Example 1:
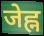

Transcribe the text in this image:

जेह्न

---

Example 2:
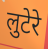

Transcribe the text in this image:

लुटेरे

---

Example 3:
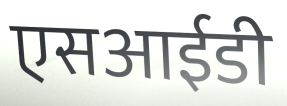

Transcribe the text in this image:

एसआईडी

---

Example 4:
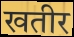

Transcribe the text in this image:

खतीर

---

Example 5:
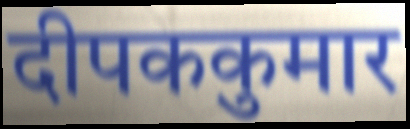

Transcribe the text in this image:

दीपककुमार